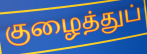
குழைத்துப்